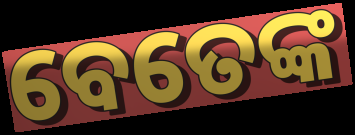
ବେତେଙ୍କ